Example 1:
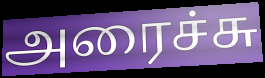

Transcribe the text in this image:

அரைச்சு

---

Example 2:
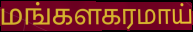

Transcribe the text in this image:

மங்களகரமாய்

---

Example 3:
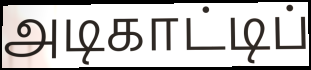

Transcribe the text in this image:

அடிகாட்டிப்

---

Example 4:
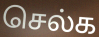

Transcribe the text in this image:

செல்க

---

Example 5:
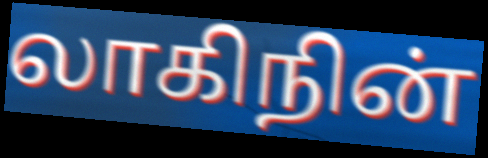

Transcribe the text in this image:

லாகிநின்